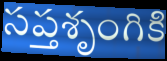
సప్తశృంగికి